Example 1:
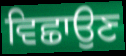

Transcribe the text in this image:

ਵਿਛਾਉਣ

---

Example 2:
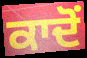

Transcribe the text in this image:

ਕਾਦੋਂ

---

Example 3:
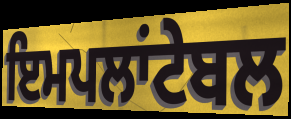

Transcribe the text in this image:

ਇਮਪਲਾਂਟੇਬਲ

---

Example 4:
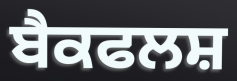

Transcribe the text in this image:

ਬੈਕਫਲਸ਼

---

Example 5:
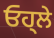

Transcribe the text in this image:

ਓਹ੍ਲੇ